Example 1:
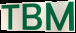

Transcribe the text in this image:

TBM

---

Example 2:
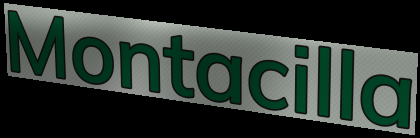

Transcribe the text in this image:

Montacilla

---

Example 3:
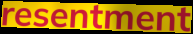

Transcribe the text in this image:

resentment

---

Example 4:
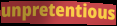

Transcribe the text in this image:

unpretentious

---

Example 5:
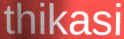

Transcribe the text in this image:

thikasi